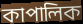
কাপালিক